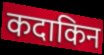
कदाकिन